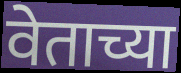
वेताच्या